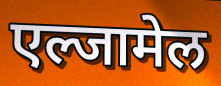
एल्जामेल